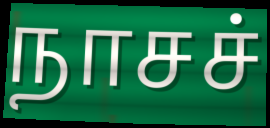
நாசச்